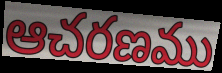
ఆచరణము